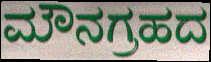
ಮೌನಗ್ರಹದ